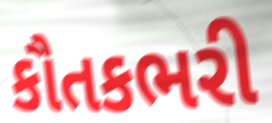
કૌતકભરી